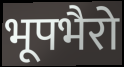
भूपभैरो